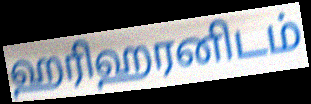
ஹரிஹரனிடம்